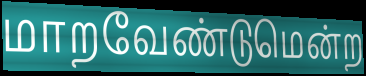
மாறவேண்டுமென்ற